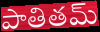
పాతితమ్